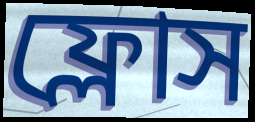
ফ্লোস